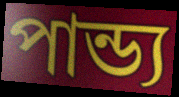
পান্ড্য